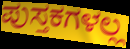
ಪುಸ್ತಕಗಳಲ್ಲ